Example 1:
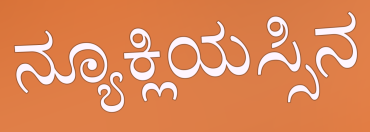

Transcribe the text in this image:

ನ್ಯೂಕ್ಲಿಯಸ್ಸಿನ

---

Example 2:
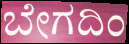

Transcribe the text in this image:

ಬೇಗದಿಂ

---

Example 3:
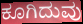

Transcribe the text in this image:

ಕೂಗಿದುವು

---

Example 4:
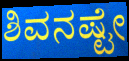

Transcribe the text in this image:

ಶಿವನಷ್ಟೇ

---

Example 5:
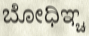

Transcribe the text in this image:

ಬೋಧಿಞ್ಚ